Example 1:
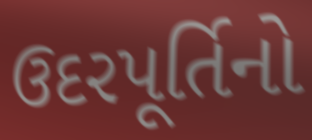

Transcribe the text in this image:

ઉદરપૂર્તિનો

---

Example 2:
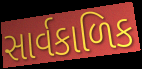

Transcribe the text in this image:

સાર્વકાળિક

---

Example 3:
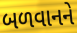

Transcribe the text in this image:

બળવાનને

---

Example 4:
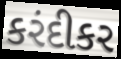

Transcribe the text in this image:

કરંદીકર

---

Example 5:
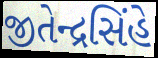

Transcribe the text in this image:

જીતેન્દ્રસિંહે